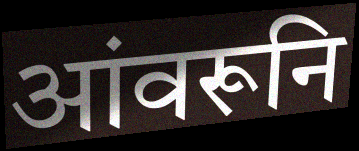
आंवरूनि